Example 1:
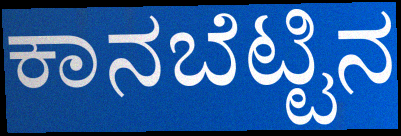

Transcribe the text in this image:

ಕಾನಬೆಟ್ಟಿನ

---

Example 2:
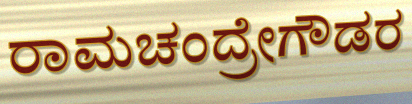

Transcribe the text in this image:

ರಾಮಚಂದ್ರೇಗೌಡರ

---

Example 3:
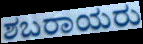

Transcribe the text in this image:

ಶಬರಾಯರು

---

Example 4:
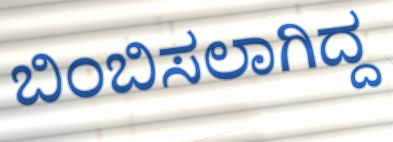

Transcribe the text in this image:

ಬಿಂಬಿಸಲಾಗಿದ್ದ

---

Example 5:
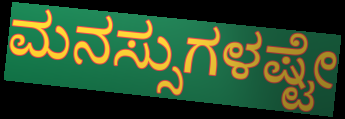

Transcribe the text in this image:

ಮನಸ್ಸುಗಳಷ್ಟೇ